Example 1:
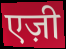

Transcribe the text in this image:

एज़ी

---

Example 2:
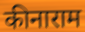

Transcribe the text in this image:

कीनाराम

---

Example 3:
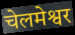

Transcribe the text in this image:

चेलमेश्वर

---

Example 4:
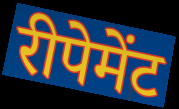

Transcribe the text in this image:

रीपेमेंट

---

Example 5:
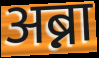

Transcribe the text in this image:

अब्ना